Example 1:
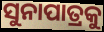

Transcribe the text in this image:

ସୁନାପାତ୍ରକୁ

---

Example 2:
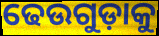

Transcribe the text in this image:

ଢେଉଗୁଡ଼ାକୁ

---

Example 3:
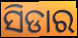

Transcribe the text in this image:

ସିଡାର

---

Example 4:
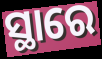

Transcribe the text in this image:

ସ୍ଥାରେ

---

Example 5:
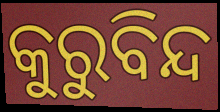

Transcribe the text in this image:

କୁରୁବିନ୍ଦ